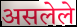
असलेले